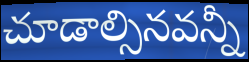
చూడాల్సినవన్నీ